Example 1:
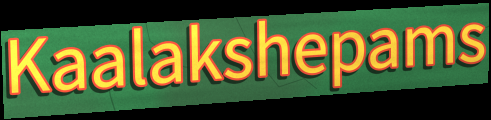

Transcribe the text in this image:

Kaalakshepams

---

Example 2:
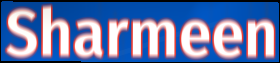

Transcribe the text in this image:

Sharmeen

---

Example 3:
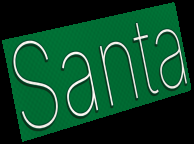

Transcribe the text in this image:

Santa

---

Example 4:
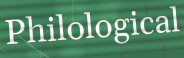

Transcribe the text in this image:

Philological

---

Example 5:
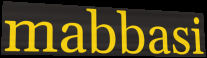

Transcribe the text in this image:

mabbasi